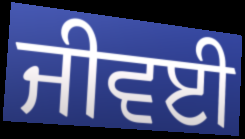
ਜੀਵਈ